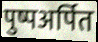
पुष्पअर्पित